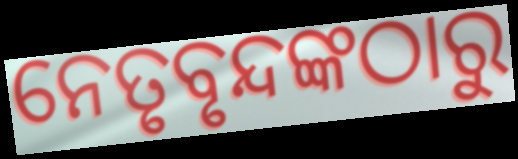
ନେତୃବୃନ୍ଦଙ୍କଠାରୁ